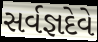
સર્વજ્ઞદેવે